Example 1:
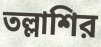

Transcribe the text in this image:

তল্লাশির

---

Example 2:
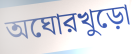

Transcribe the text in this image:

অঘোরখুড়ো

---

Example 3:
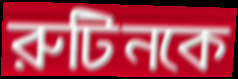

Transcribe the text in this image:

রুটিনকে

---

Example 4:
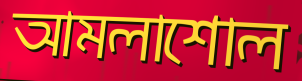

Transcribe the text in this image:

আমলাশোল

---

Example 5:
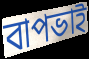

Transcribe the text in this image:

বাপভাই